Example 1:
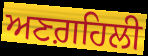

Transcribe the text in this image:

ਅਣਗ਼ਹਿਲੀ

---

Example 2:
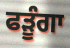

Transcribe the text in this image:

ਫੜੂੰਗਾ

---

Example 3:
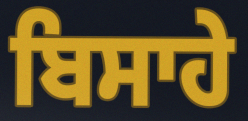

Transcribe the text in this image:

ਬਿਸਾਹੇ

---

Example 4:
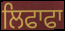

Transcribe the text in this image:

ਲਿਫਾਫਾ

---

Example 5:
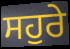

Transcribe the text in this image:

ਸਹੁਰੇ